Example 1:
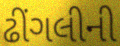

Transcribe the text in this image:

ઢીંગલીની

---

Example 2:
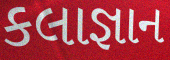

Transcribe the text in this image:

કલાજ્ઞાન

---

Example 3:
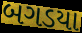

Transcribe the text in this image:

બગડયા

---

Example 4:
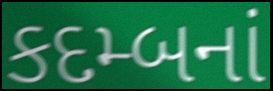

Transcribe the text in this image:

કદમ્બનાં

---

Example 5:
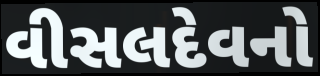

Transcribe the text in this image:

વીસલદેવનો